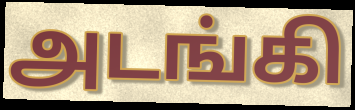
அடங்கி